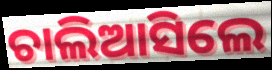
ଚାଲିଆସିଲେ